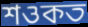
শওকত